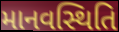
માનવસ્થિતિ